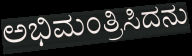
ಅಭಿಮಂತ್ರಿಸಿದನು